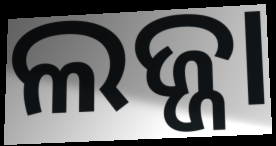
ଲଜ୍ଜା